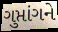
ગુપ્તાંગને